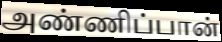
அண்ணிப்பான்